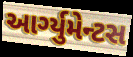
આર્ગ્યુમેન્ટસ